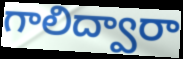
గాలిద్వారా